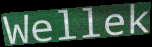
Wellek